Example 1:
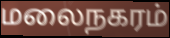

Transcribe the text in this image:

மலைநகரம்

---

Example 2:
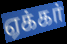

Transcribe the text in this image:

ஏக்கர்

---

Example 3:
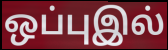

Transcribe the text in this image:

ஒப்புஇல்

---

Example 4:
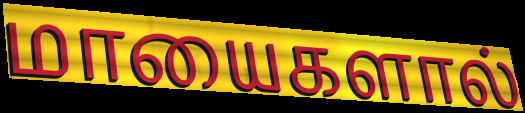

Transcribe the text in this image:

மாயைகளால்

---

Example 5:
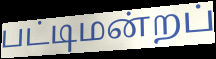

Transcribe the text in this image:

பட்டிமன்றப்